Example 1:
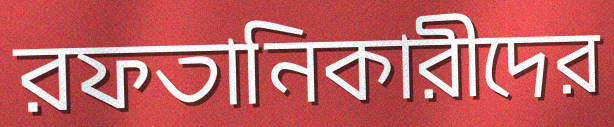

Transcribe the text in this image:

রফতানিকারীদের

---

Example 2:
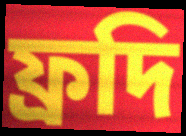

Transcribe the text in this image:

ফ্রদি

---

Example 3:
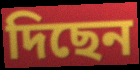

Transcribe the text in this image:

দিছেন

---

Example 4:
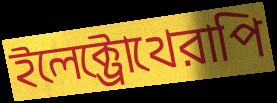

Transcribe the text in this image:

ইলেক্ট্রোথেরাপি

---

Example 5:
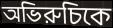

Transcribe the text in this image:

অভিরুচিকে